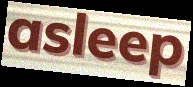
asleep